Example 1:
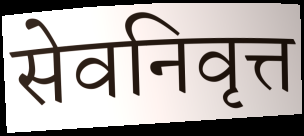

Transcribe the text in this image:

सेवनिवृत्त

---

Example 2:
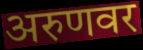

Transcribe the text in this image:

अरुणवर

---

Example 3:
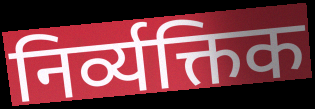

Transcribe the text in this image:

निर्व्यक्तिक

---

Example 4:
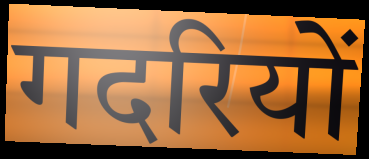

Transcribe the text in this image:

गदरियों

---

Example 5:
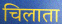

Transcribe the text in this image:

चिलाता